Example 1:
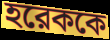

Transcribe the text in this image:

হরেককে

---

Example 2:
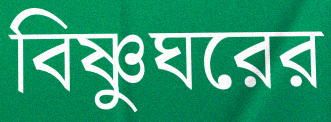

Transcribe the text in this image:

বিষ্ণুঘরের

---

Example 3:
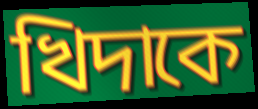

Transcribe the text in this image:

খিদাকে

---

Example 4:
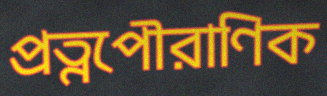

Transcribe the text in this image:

প্রত্নপৌরাণিক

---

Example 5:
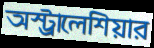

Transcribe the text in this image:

অস্ট্রালেশিয়ার